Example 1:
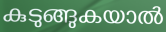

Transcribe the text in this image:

കുടുങ്ങുകയാൽ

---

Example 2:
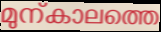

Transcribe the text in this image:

മുന്കാലത്തെ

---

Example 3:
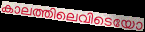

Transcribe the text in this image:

കാലത്തിലെവിടെയോ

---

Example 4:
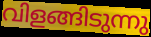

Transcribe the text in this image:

വിളങ്ങിടുന്നു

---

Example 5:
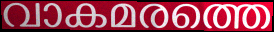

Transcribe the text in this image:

വാകമരത്തെ